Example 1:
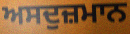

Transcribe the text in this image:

ਅਸਦੁਜ਼ਮਾਨ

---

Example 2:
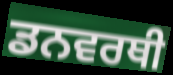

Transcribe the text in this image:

ਡਨਵਰਥੀ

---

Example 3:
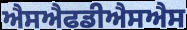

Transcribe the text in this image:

ਐਸਐਫਡੀਐਸਐਸ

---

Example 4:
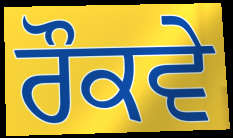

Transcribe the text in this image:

ਰੌਕਵੇ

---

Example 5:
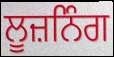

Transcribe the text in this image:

ਲੂਜ਼ਨਿੰਗ